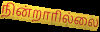
நின்றாரில்லை